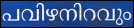
പവിഴനിറവും